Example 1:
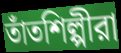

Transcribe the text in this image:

তাঁতশিল্পীরা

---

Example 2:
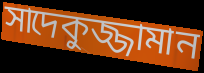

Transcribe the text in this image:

সাদেকুজ্জামান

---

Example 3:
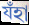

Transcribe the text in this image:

যঁহা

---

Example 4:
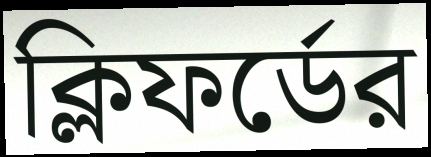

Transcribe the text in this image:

ক্লিফর্ডের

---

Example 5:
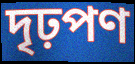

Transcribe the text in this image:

দৃঢ়পণ